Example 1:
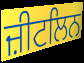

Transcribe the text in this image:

ਜ਼ੀਟਲਿਨ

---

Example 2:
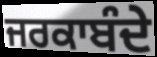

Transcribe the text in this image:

ਜਰਕਾਬੰਦੇ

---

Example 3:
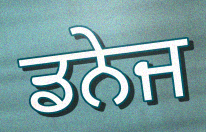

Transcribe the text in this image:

ਡਨੇਜ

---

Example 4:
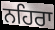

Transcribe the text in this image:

ਨਹਿਰਾ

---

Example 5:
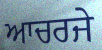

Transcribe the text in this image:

ਆਚਰਜੇ